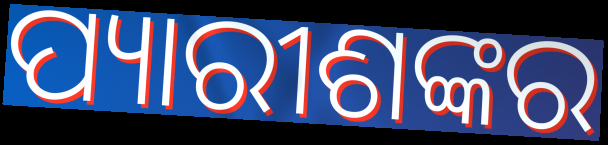
ପ୍ୟାରୀଶଙ୍କର